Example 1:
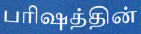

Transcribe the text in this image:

பரிஷத்தின்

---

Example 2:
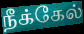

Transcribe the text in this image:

நீக்கேல்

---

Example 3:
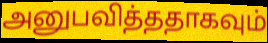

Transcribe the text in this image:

அனுபவித்ததாகவும்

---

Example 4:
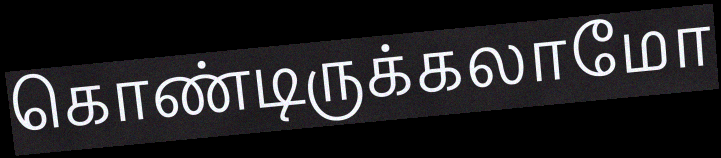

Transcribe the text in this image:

கொண்டிருக்கலாமோ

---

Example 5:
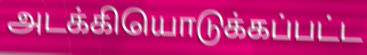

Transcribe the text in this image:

அடக்கியொடுக்கப்பட்ட